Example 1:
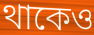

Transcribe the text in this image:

থাকেও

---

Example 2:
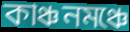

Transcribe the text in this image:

কাঞ্চনমঞ্চে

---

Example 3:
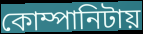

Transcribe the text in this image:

কোম্পানিটায়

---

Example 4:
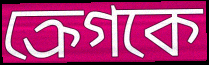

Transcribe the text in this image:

ক্রেগকে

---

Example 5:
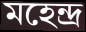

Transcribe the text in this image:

মহেন্দ্র